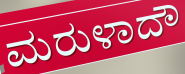
ಮರುಳಾದೌ